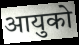
आयुको